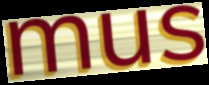
mus